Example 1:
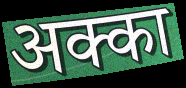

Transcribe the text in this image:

अक्का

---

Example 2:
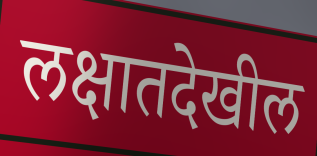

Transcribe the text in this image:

लक्षातदेखील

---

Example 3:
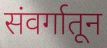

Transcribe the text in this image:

संवर्गातून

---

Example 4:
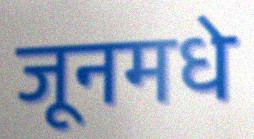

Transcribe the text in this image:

जूनमधे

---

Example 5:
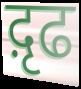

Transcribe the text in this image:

द़ृढ